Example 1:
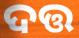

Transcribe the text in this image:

ଦତ୍ତ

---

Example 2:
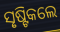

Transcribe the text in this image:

ସୃଷ୍ଟିକଲେ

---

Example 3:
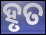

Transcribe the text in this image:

ହୃତ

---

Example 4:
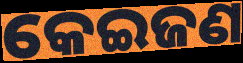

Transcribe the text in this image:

କେଇଜଣ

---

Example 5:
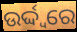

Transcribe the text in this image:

ଉର୍ଦ୍ଦ୍ୱରେ